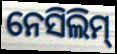
ନେସିଲିମ୍